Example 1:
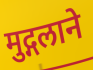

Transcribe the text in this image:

मुद्गलाने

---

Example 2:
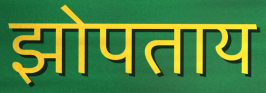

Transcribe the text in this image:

झोपताय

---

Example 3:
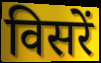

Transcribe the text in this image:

विसरें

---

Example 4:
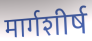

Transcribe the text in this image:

मार्गशीर्ष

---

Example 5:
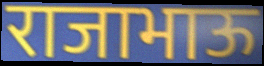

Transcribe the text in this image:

राजाभाऊ